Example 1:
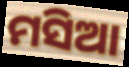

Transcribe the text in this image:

ମସିଆ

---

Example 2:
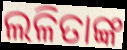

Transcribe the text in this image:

ଲଳିତାଙ୍କ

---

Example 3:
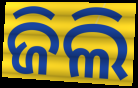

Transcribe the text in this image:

ଜିଲି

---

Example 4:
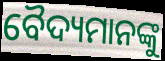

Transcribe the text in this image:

ବୈଦ୍ୟମାନଙ୍କୁ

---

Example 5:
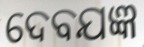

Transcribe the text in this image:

ଦେବଯଜ୍ଞ